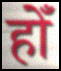
होँ